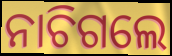
ନାଚିଗଲେ